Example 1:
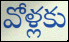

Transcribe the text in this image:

వోళ్లకు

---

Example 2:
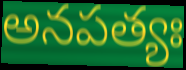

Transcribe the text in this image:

అనపత్యః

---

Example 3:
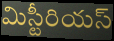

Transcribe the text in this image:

మిస్టీరియస్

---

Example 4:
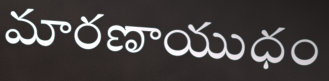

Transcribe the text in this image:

మారణాయుధం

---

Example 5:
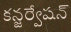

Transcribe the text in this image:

కన్జర్వేషన్